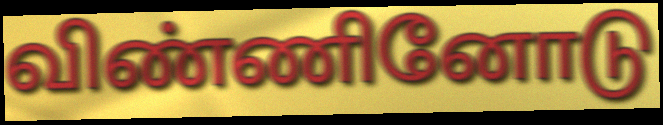
விண்ணினோடு